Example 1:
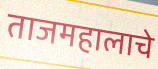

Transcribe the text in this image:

ताजमहालाचे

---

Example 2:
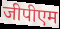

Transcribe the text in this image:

जीपीएम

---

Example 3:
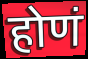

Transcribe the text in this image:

होणं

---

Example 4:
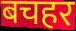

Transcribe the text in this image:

बचहर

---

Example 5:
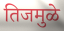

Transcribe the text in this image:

तिजमुळे